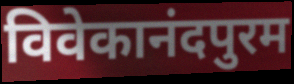
विवेकानंदपुरम